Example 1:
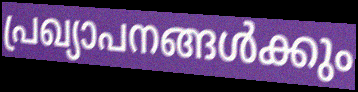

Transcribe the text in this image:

പ്രഖ്യാപനങ്ങൾക്കും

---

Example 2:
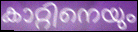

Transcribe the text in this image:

കാറ്റിനെയും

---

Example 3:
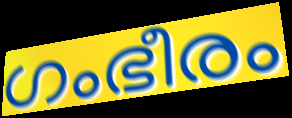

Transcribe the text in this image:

ഗംഭീരം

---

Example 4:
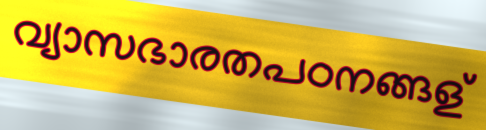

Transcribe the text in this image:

വ്യാസഭാരതപഠനങ്ങള്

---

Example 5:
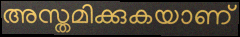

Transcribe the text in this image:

അസ്തമിക്കുകയാണ്